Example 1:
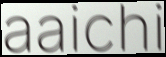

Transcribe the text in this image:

aaichi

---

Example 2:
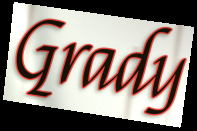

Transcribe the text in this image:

Grady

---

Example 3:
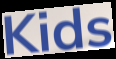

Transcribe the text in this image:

Kids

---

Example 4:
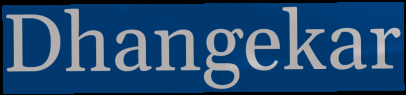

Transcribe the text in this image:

Dhangekar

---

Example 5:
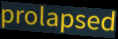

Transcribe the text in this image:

prolapsed